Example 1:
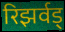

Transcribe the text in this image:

रिझर्वड्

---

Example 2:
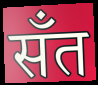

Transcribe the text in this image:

सँत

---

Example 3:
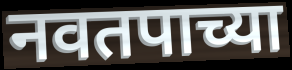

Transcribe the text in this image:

नवतपाच्या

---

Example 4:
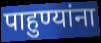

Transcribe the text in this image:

पाहुण्यांना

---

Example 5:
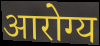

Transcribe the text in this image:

आरोग्य